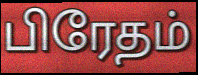
பிரேதம்